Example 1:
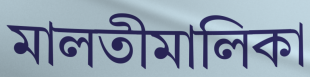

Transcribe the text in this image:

মালতীমালিকা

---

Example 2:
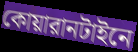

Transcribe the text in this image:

কোয়ারানটাইনে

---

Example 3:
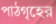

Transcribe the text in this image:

পাঠগৃহের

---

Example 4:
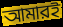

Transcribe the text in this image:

আমারই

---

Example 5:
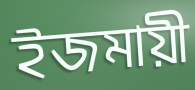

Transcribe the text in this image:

ইজমায়ী